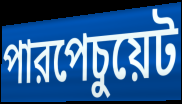
পারপেচুয়েট